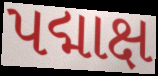
પદ્માક્ષ